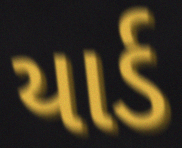
યાર્ડ